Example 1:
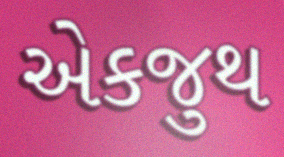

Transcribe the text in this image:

એકજુથ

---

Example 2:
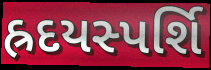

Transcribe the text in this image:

હ્રદયસ્પર્શિ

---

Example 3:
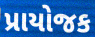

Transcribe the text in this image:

પ્રાયોજક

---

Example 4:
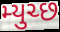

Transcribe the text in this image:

મ્યુચ્છ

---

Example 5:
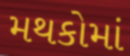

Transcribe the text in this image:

મથકોમાં